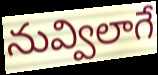
నువ్విలాగే